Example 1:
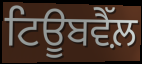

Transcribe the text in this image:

ਟਿਊਬਵੈੱਲ਼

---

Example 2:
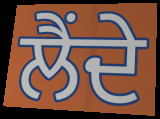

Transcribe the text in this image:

ਲੈਂਦੇ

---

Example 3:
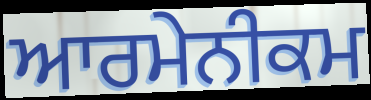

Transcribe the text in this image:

ਆਰਮੇਨੀਕਮ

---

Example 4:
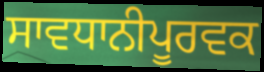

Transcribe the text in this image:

ਸਾਵਧਾਨੀਪੂਰਵਕ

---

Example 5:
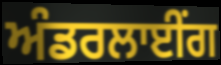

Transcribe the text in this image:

ਅੰਡਰਲਾਈੰਗ